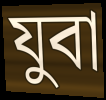
যুবা